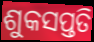
ଶୁକସପ୍ତତି